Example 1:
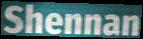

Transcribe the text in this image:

Shennan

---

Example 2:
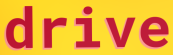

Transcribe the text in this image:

drive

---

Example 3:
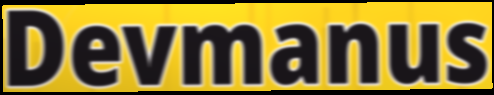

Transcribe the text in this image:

Devmanus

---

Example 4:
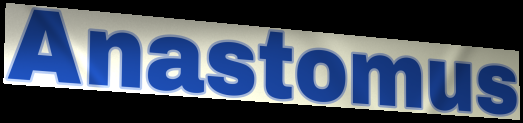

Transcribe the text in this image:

Anastomus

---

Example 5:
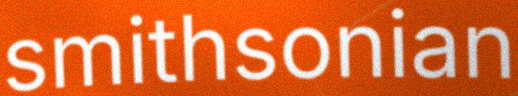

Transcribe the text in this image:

smithsonian